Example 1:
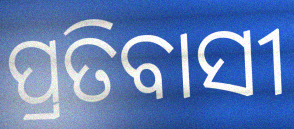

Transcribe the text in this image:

ପ୍ରତିବାସୀ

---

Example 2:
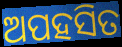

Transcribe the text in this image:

ଅପହସିତ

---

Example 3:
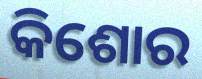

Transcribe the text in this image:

କିଶୋର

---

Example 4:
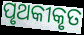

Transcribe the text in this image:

ପୃଥକୀକୃତ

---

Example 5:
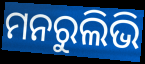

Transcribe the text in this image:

ମନରୁଲିଭି